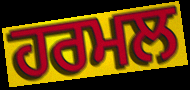
ਹਰਮਲ